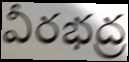
వీరభద్ర